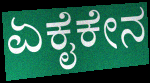
ಏಕೈಕೇನ